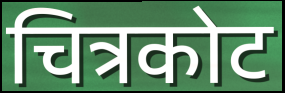
चित्रकोट